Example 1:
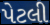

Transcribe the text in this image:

પેટલી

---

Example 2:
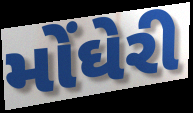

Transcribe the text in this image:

મોંઘેરી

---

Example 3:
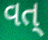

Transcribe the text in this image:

વત્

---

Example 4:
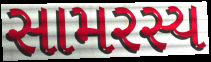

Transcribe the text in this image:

સામરસ્ય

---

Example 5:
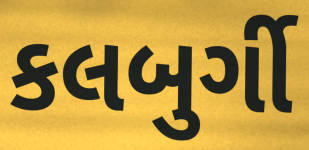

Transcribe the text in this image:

કલબુર્ગી